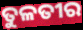
ତୁଳତୀର